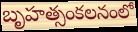
బృహత్సంకలనంలో